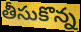
తీసుకొన్న